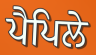
ਪੈਪਿਲੇ